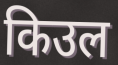
किउल